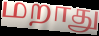
மறாது